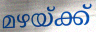
മഴയ്ക്ക്